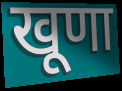
खूणा